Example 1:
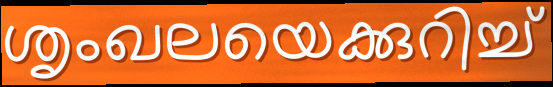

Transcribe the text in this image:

ശൃംഖലയെക്കുറിച്ച്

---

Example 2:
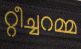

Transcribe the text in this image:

റ്റീച്ചറമ്മ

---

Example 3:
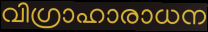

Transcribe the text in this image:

വിഗ്രാഹാരാധന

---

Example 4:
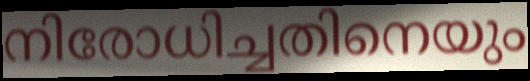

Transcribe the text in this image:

നിരോധിച്ചതിനെയും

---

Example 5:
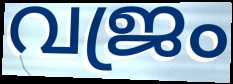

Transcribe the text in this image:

വജ്രം